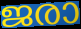
ജരാ